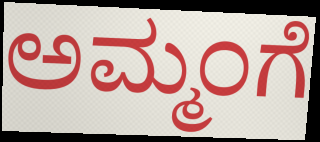
ಅಮ್ಮಂಗೆ